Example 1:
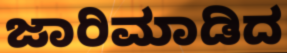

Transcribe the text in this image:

ಜಾರಿಮಾಡಿದ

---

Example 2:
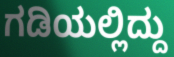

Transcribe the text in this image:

ಗಡಿಯಲ್ಲಿದ್ದು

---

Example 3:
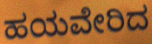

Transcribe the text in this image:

ಹಯವೇರಿದ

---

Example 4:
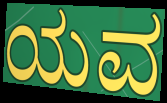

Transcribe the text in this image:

ಯವ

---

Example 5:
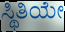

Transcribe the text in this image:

ಸ್ಥಿತಿಯೇ